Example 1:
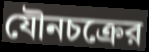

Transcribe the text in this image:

যৌনচক্রের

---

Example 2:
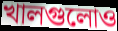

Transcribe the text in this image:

খালগুলোও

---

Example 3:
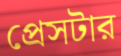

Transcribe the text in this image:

প্রেসটার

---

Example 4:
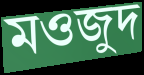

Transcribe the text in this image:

মওজুদ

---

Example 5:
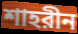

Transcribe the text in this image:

শাহরীন